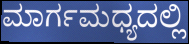
ಮಾರ್ಗಮಧ್ಯದಲ್ಲಿ